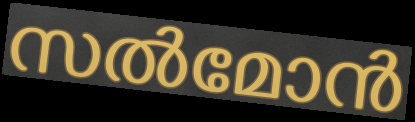
സൽമോൻ